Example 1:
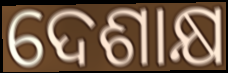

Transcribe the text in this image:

ଦେଶାକ୍ଷ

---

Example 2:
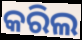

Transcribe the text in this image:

କରିଲ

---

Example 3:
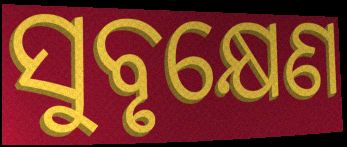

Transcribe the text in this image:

ସୁବୃକ୍ଷେଣ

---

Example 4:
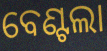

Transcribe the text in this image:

ବେଣ୍ଟଲା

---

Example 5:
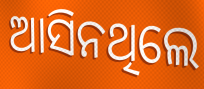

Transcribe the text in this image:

ଆସିନଥିଲେ